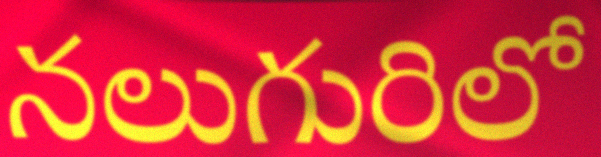
నలుగురిలో